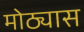
मोठ्यास